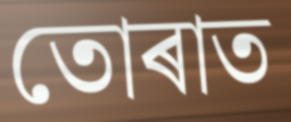
তোৰাত